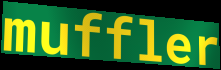
muffler